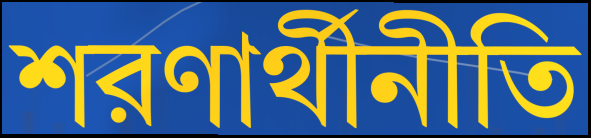
শরণার্থীনীতি